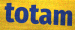
totam